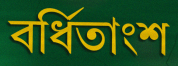
বর্ধিতাংশ